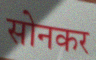
सोनकर